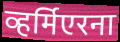
व्हर्मिएरना